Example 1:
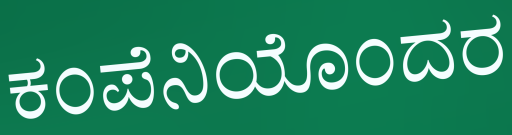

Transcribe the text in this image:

ಕಂಪೆನಿಯೊಂದರ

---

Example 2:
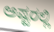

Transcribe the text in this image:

ಅಷ್ಟರಲ್ಲಿ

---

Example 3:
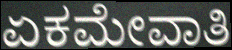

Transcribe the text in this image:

ಏಕಮೇವಾತಿ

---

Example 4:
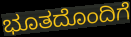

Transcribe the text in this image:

ಭೂತದೊಂದಿಗೆ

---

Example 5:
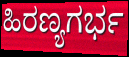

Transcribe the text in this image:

ಹಿರಣ್ಯಗರ್ಭ